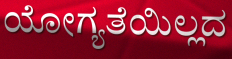
ಯೋಗ್ಯತೆಯಿಲ್ಲದ